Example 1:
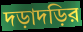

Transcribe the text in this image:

দড়াদড়ির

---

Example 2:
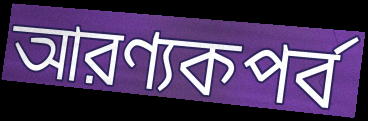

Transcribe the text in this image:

আরণ্যকপর্ব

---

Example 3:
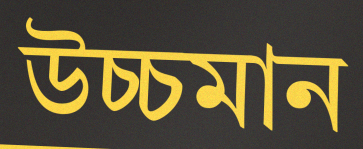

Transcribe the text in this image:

উচ্চমান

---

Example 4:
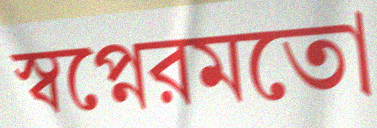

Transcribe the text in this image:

স্বপ্নেরমতো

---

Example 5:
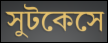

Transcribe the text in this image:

সুটকেসে